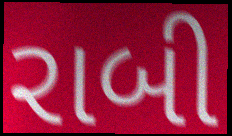
રાબી